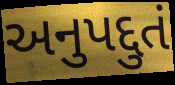
અનુપદ્દુતં